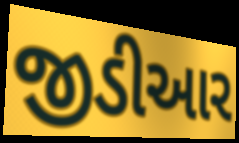
જીડીઆર